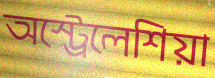
অস্ট্রেলেশিয়া